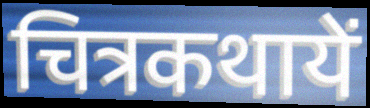
चित्रकथायें